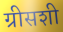
ग्रीसशी